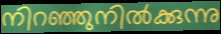
നിറഞ്ഞുനിൽക്കുന്നു